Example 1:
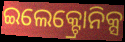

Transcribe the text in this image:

ଇଲେକ୍ଟ୍ରୋନିକ୍ସ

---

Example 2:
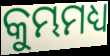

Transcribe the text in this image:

କୁମ୍ଭମଧ୍ୟ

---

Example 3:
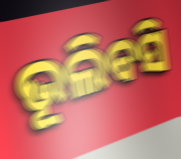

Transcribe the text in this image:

ଭୂଲିବସି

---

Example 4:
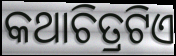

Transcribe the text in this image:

କଥାଚିତ୍ରଟିଏ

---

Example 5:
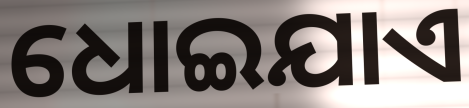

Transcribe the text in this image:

ଧୋଇଯାଏ